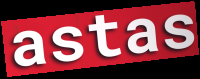
astas